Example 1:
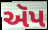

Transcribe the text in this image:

ઍપ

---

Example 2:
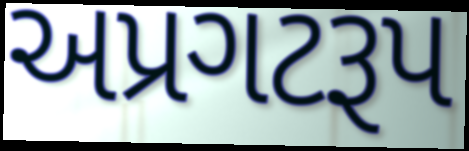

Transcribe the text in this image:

અપ્રગટરૂપ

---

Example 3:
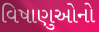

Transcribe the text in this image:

વિષાણુઓનો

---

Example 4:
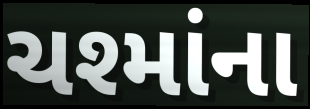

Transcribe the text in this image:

ચશ્માંના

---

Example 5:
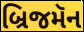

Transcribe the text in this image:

બ્રિજમૅન